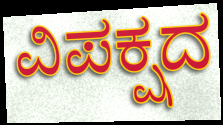
ವಿಪಕ್ಷದ